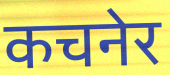
कचनेर